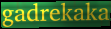
gadrekaka